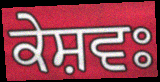
ਕੇਸ਼ਵਃ